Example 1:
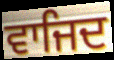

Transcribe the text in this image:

ਵਾਜਿਦ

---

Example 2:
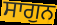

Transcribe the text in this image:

ਸਾਗੁਨ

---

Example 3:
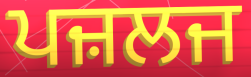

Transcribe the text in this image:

ਪਜ਼ਲਜ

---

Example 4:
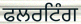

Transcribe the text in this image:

ਫਲਰਟਿੰਗ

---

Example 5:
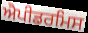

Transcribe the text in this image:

ਐਪੀਡਰਮਿਸ